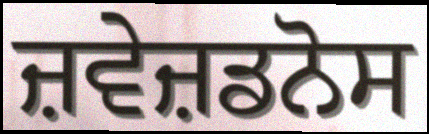
ਜ਼ਵੇਜ਼ਡਨੋਸ